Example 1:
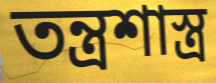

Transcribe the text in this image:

তন্ত্রশাস্ত্র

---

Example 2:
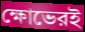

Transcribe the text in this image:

ক্ষোভেরই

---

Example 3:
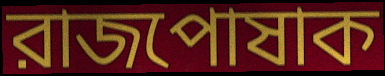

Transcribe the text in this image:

রাজপোষাক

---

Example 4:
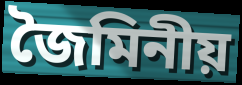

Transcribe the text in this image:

জৈমিনীয়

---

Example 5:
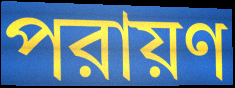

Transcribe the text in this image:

পরায়ণ